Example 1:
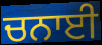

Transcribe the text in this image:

ਚਨਾਈ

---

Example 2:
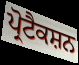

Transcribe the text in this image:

ਪ੍ਰੋਟੈਕਸ਼ਨ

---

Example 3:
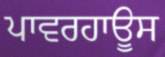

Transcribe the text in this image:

ਪਾਵਰਹਾਊਸ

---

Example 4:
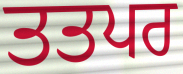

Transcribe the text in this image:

ਤਤਪਰ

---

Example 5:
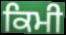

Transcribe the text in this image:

ਕਿਮੀ